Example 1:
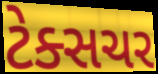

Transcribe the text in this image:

ટેક્સચર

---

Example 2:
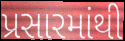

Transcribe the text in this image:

પ્રસારમાંથી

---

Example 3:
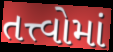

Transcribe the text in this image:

તત્ત્વોમાં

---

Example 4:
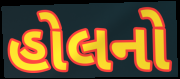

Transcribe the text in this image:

હોલનો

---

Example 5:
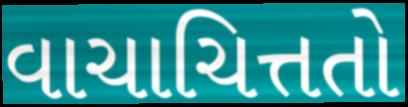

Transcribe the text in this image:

વાચાચિત્તતો